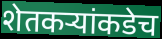
शेतकऱ्यांकडेच